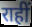
राहीं